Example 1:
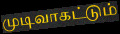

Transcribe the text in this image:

முடிவாகட்டும்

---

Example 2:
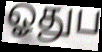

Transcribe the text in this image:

ஓதுப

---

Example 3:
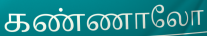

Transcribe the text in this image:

கண்ணாலோ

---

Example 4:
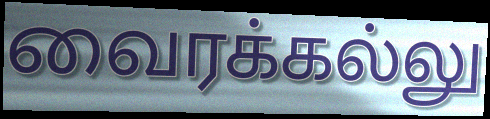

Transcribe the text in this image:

வைரக்கல்லு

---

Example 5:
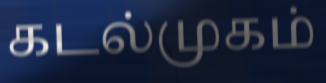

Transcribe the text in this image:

கடல்முகம்